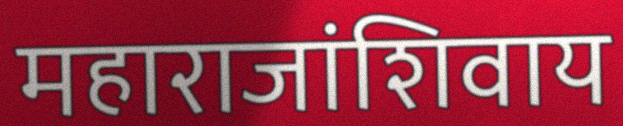
महाराजांशिवाय